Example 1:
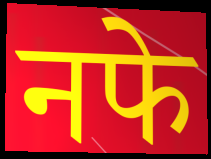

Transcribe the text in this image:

नफे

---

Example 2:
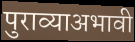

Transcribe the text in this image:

पुराव्याअभावी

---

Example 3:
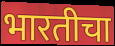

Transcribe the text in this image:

भारतीचा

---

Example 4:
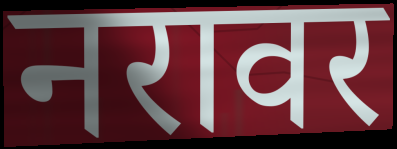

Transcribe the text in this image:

नरावर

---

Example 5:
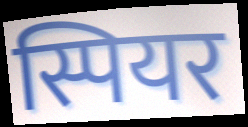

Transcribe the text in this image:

स्पियर